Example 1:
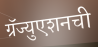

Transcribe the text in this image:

ग्रॅज्युएशनची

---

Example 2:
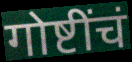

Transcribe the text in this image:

गोष्टींचं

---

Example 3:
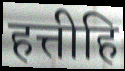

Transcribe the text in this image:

हत्तीहि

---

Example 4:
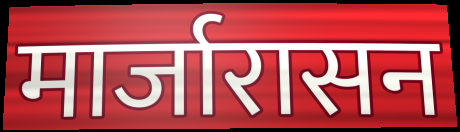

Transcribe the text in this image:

मार्जारासन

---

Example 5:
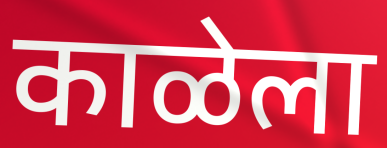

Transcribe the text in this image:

काळेला